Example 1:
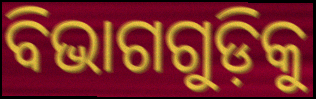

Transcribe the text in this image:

ବିଭାଗଗୁଡ଼ିକୁ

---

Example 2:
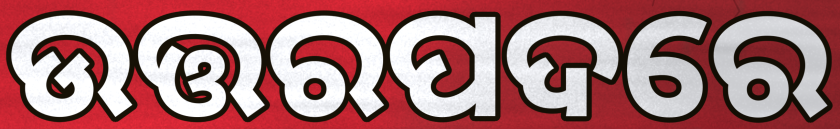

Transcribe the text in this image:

ଉତ୍ତରପଦରେ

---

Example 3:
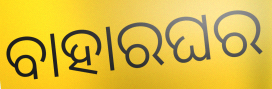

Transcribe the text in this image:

ବାହାରଘର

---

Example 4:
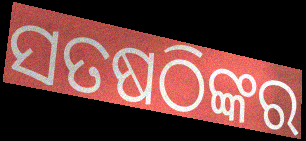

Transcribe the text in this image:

ସତଷଠିଙ୍କର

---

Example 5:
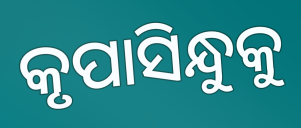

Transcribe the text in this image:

କୃପାସିନ୍ଧୁକୁ